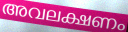
അവലക്ഷണം